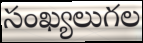
సంఖ్యలుగల